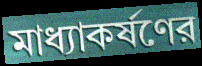
মাধ্যাকর্ষণের